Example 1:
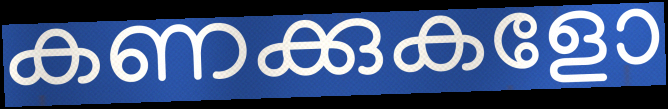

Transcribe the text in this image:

കണക്കുകളോ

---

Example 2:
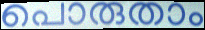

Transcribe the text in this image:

പൊരുതാം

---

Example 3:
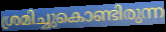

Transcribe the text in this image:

ശ്രമിച്ചുകൊണ്ടിരുന്ന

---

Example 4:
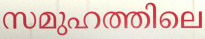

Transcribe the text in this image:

സമുഹത്തിലെ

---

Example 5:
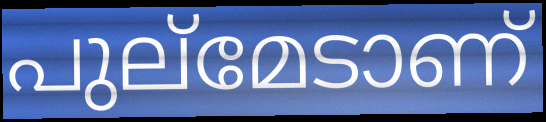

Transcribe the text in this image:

പുല്മേടാണ്